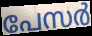
പേസർ